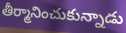
తీర్మానించుకున్నాడు